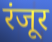
रंजूर